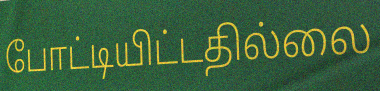
போட்டியிட்டதில்லை